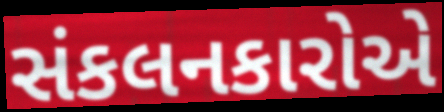
સંકલનકારોએ